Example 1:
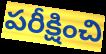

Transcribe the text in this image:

పరీక్షించి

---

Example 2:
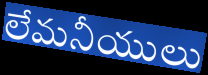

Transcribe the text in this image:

లేమనీయులు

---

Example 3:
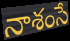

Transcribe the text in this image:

నాశంసే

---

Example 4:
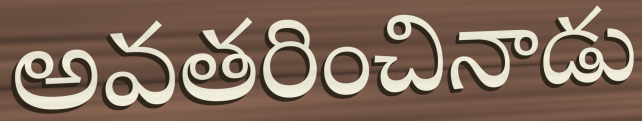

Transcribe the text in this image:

అవతరించినాడు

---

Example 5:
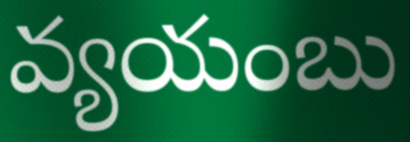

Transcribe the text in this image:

వ్యయంబు